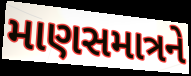
માણસમાત્રને